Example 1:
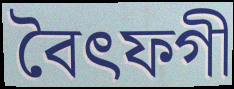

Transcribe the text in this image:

বৈৎফগী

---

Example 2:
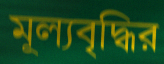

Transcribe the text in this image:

মূল্যবৃদ্ধির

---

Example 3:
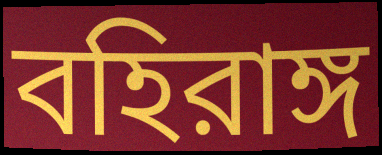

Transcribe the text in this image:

বহিরাঙ্গ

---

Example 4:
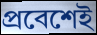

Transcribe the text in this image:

প্রবেশেই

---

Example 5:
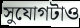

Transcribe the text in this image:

সুযোগটাও